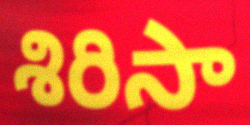
శిరిసా